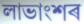
লাভাংশৰ